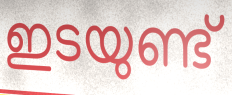
ഇടയുണ്ട്